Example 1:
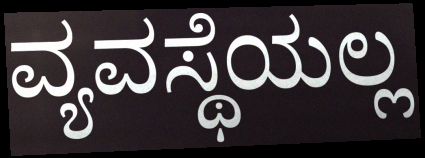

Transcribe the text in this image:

ವ್ಯವಸ್ಥೆಯಲ್ಲ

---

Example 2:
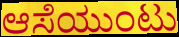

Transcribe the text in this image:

ಆಸೆಯುಂಟು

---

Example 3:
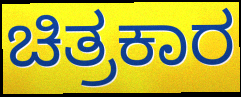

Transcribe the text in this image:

ಚಿತ್ರಕಾರ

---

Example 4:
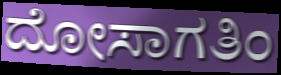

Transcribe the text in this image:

ದೋಸಾಗತಿಂ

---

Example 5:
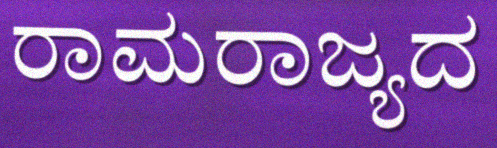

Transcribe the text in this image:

ರಾಮರಾಜ್ಯದ